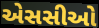
એસસીઓ